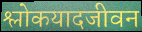
श्लोकयादजीवन